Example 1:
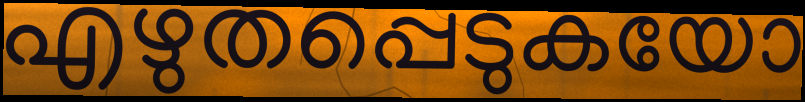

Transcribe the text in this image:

എഴുതപ്പെടുകയോ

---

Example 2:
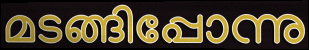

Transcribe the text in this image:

മടങ്ങിപ്പോന്നു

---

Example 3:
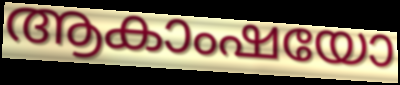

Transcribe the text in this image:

ആകാംഷയോ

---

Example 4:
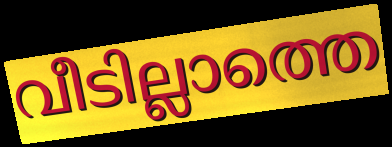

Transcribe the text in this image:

വീടില്ലാത്തെ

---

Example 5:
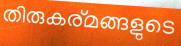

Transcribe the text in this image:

തിരുകര്മങ്ങളുടെ